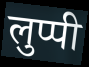
लुप्पी